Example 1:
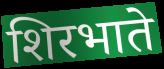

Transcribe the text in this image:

शिरभाते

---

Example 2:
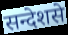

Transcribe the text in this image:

सन्देशसे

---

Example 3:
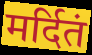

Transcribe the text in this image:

मर्दितं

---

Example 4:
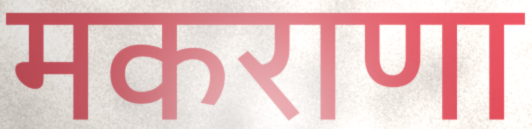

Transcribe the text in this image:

मकराणा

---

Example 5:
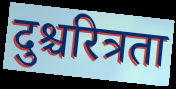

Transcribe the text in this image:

दुश्चरित्रता